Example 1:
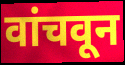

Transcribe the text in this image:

वांचवून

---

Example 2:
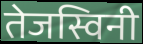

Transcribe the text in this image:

तेजस्विनी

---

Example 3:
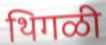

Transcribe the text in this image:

थिगळी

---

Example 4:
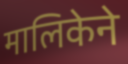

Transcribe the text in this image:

मालिकेने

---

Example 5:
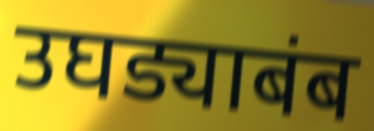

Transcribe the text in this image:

उघड्याबंब